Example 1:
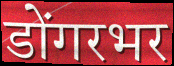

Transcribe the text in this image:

डोंगरभर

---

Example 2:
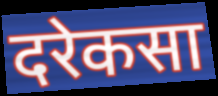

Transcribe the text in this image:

दरेकसा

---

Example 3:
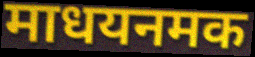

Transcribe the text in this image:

माधयनमक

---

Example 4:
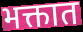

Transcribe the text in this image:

भक्तात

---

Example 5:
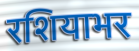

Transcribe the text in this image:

रशियाभर